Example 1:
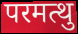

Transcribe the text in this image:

परमत्थु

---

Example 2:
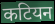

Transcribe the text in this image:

कटियन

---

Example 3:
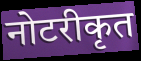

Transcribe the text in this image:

नोटरीकृत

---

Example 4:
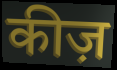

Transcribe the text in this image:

कीज़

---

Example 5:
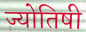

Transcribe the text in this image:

ज्योतिषी